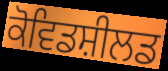
ਕੋਵਿਡਸ਼ੀਲਡ